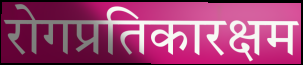
रोगप्रतिकारक्षम